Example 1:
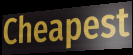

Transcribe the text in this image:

Cheapest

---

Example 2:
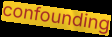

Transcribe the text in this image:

confounding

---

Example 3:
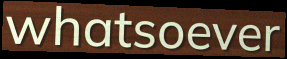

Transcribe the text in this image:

whatsoever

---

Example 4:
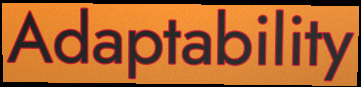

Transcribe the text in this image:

Adaptability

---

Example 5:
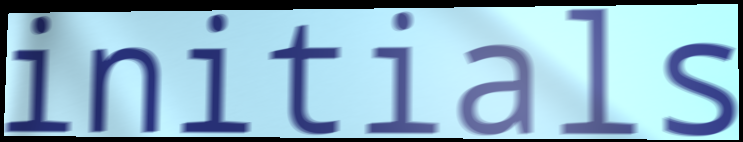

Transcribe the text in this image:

initials